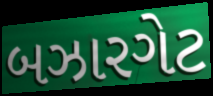
બઝારગેટ